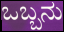
ಒಬ್ಬನು